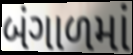
બંગાળમાં